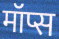
मॉप्स